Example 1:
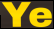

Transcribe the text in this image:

Ye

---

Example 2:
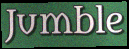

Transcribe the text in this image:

Jumble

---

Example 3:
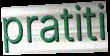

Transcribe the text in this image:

pratiti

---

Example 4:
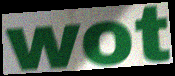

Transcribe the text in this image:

wot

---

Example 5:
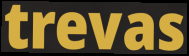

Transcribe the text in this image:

trevas